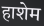
हाशेम